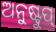
ଅନୁଷ୍ଟୁପ୍